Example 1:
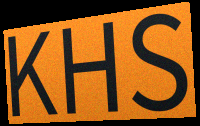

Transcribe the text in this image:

KHS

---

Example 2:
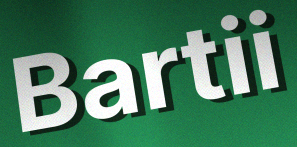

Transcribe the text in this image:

Bartii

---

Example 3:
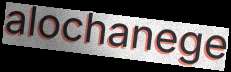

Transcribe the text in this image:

alochanege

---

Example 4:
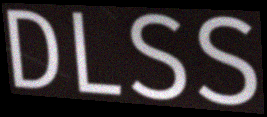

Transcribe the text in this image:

DLSS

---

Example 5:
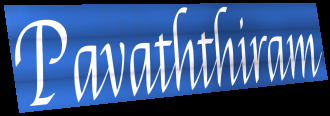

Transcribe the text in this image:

Pavaththiram